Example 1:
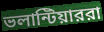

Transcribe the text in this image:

ভলান্টিয়াররা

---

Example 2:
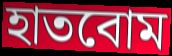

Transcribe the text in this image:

হাতবোম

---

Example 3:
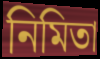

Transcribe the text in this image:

নিমিতা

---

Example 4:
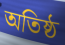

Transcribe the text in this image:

অতিষ্ঠ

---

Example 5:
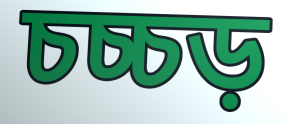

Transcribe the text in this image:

চচ্চড়